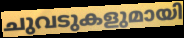
ചുവടുകളുമായി